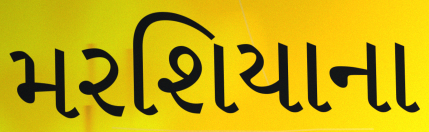
મરશિયાના